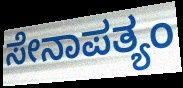
ಸೇನಾಪತ್ಯಂ